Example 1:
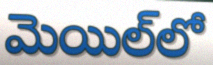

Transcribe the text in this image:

మెయిల్‌లో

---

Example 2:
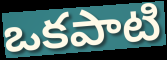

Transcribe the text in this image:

ఒకపాటి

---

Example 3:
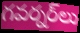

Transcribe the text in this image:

గవర్నర్‌లు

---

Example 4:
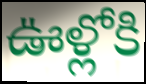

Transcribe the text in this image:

ఊళ్లోకి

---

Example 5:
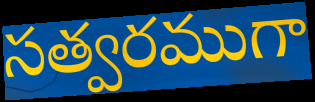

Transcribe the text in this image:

సత్వరముగా